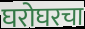
घरोघरचा